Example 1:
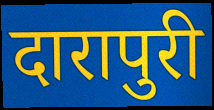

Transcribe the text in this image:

दारापुरी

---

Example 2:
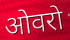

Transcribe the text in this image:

ओवरो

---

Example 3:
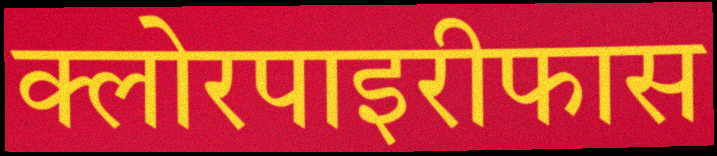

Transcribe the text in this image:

क्लोरपाइरीफास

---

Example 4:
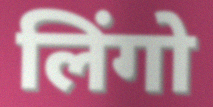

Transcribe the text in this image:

लिंगो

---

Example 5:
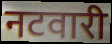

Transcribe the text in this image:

नटवारी